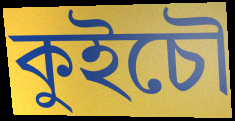
কুইচৌ